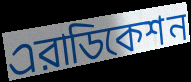
এরাডিকেশন